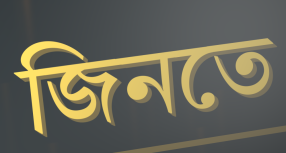
জিনতে